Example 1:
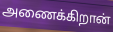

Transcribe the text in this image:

அணைக்கிறான்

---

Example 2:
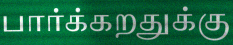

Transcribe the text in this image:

பார்க்கறதுக்கு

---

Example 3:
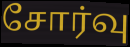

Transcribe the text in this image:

சோர்வு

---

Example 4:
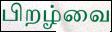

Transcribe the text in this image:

பிறழ்வை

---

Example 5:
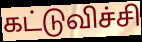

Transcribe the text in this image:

கட்டுவிச்சி